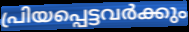
പ്രിയപ്പെട്ടവർക്കും